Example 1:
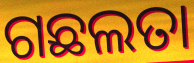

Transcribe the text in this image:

ଗଛଲତା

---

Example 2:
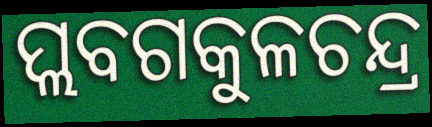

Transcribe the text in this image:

ପ୍ଲବଗକୁଳଚନ୍ଦ୍ର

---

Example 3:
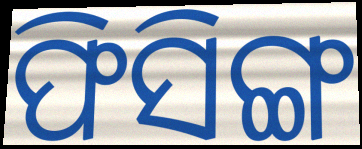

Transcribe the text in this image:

ଫିସିଙ୍ଗ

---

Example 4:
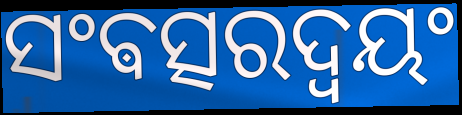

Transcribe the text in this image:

ସଂଵତ୍ସରଦ୍ଵୟଂ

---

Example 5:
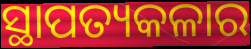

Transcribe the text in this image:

ସ୍ଥାପତ୍ୟକଳାର